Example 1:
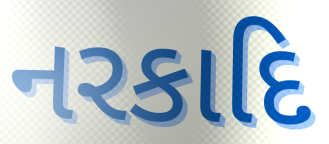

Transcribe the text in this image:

નરકાદિ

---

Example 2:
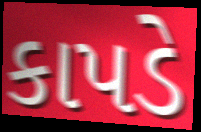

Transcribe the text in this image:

કાપડે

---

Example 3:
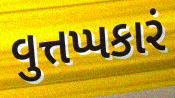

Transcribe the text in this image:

વુત્તપ્પકારં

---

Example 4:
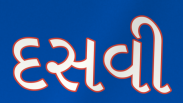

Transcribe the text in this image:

દસવી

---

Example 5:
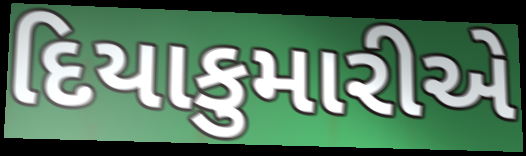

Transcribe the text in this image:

દિયાકુમારીએ